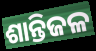
ଶାନ୍ତିଜଳ